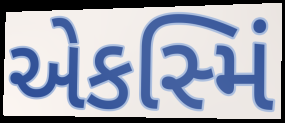
એકસ્મિં